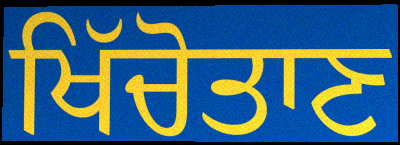
ਖਿੱਚੋਤਾਣ